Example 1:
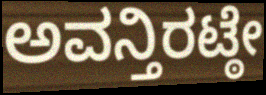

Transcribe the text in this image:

ಅವನ್ತಿರಟ್ಠೇ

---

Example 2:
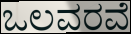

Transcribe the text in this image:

ಒಲವರವೆ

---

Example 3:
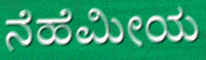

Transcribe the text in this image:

ನೆಹೆಮೀಯ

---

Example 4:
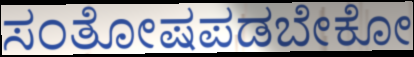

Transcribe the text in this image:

ಸಂತೋಷಪಡಬೇಕೋ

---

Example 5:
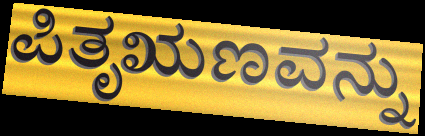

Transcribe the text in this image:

ಪಿತೃಋಣವನ್ನು